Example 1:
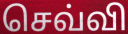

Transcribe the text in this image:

செவ்வி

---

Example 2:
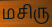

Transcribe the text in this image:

மசிரு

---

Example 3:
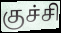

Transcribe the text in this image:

குச்சி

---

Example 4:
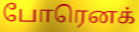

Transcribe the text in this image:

போரெனக்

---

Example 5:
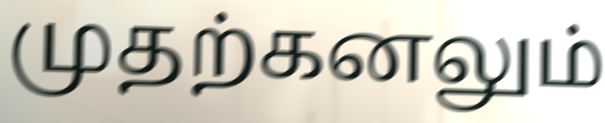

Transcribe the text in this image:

முதற்கனலும்